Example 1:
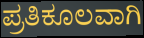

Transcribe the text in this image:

ಪ್ರತಿಕೂಲವಾಗಿ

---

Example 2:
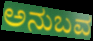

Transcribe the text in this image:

ಅನುಬವ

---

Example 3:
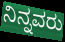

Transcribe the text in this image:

ನಿನ್ನವರು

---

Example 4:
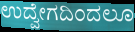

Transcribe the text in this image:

ಉದ್ವೇಗದಿಂದಲೂ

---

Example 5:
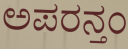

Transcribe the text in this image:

ಅಪರನ್ತಂ